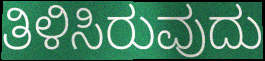
ತಿಳಿಸಿರುವುದು